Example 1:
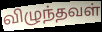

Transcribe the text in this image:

விழுந்தவள்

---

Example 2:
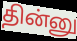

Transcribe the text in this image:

தின்னு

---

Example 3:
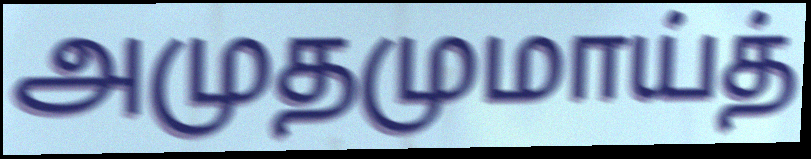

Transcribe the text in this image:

அமுதமுமாய்த்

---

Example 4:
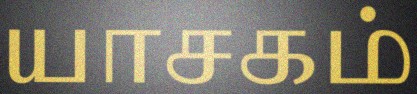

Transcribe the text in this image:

யாசகம்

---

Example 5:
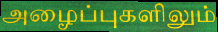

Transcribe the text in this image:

அழைப்புகளிலும்